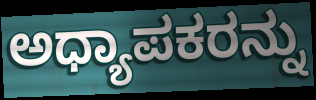
ಅಧ್ಯಾಪಕರನ್ನು